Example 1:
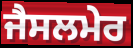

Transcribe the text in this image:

ਜੈਸਲਮੇਰ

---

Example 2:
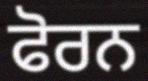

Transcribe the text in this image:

ਫੋਰਨ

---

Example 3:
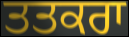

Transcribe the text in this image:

ਤਤਕਰਾ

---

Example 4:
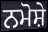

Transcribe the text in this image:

ਨਮੋਸ਼ੇ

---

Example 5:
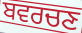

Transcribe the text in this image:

ਬਵਰਚਣ